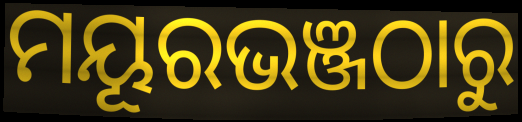
ମୟୂରଭଞ୍ଜଠାରୁ